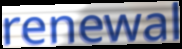
renewal